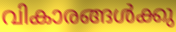
വികാരങ്ങൾക്കു